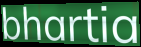
bhartia